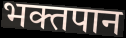
भक्तपान